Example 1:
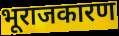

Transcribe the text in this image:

भूराजकारण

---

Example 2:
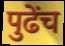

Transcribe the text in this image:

पुढेंच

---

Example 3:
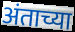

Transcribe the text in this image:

अंताच्या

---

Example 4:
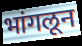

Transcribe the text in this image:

भांगलून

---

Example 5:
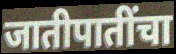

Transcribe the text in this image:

जातीपातींचा